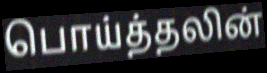
பொய்த்தலின்